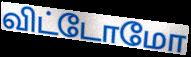
விட்டோமோ